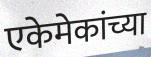
एकेमेकांच्या